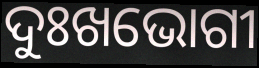
ଦୁଃଖଭୋଗୀ